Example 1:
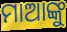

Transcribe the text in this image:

ମାଆଙ୍କୁ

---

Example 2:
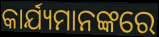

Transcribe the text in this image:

କାର୍ଯ୍ୟମାନଙ୍କରେ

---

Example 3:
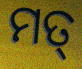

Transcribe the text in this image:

ମତ୍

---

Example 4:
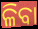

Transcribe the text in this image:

ଳିବା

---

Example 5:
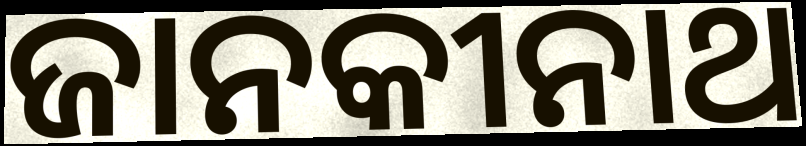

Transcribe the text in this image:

ଜାନକୀନାଥ